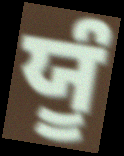
ਯੂੰ